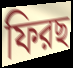
ফিরছ